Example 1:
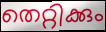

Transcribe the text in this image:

തെറ്റിക്കും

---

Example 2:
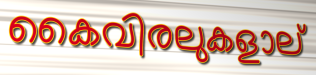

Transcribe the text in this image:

കൈവിരലുകളാല്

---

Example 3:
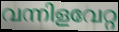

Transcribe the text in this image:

വന്നിളവേറ്റ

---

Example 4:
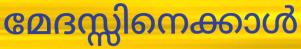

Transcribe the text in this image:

മേദസ്സിനെക്കാൾ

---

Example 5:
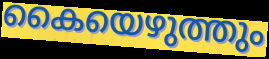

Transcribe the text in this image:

കൈയെഴുത്തും